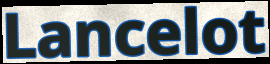
Lancelot